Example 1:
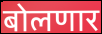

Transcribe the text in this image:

बोलणार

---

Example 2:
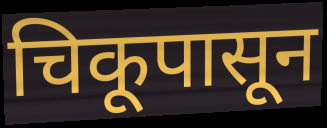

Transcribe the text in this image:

चिकूपासून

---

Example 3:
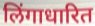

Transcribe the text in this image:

लिंगाधारित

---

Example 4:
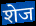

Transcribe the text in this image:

शेज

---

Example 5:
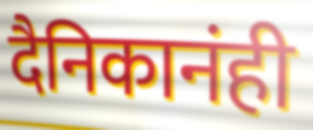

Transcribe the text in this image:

दैनिकानंही